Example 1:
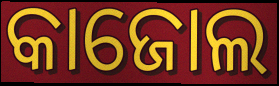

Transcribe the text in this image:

କାଜୋଲ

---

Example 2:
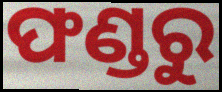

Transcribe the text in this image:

ଫଣ୍ଡରୁ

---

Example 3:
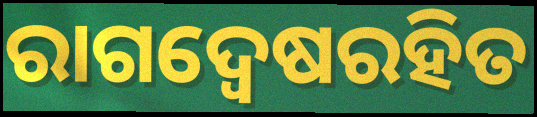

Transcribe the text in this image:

ରାଗଦ୍ୱେଷରହିତ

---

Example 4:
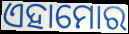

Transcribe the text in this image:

ଏହାମୋର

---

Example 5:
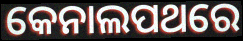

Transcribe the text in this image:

କେନାଲପଥରେ